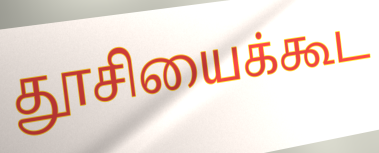
தூசியைக்கூட